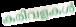
കരിവളകൾ